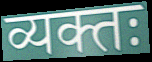
व्यक्तः